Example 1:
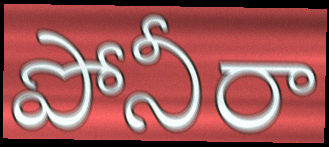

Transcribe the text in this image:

పోనీరా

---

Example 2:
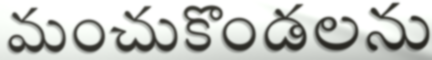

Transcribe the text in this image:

మంచుకొండలను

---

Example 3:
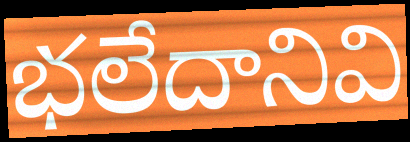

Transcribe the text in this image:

భలేదానివి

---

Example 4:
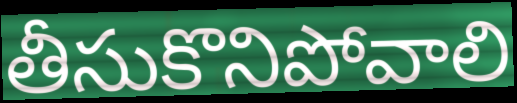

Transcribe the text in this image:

తీసుకొనిపోవాలి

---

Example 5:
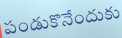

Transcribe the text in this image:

పండుకొనేందుకు